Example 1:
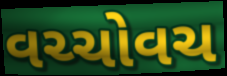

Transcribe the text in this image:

વચ્ચોવચ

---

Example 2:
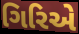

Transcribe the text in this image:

ગિરિએ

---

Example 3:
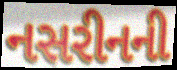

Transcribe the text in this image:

નસરીનની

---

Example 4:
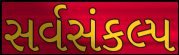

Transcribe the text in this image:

સર્વસંકલ્પ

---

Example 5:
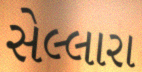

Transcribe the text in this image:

સેલ્લારા